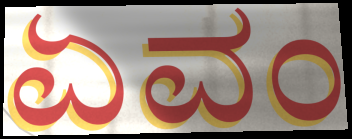
ಏವಂ